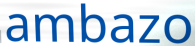
ambazo